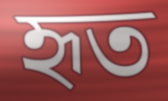
হৃত